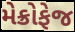
મેક્રોફેજ